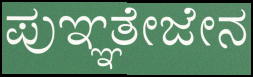
ಪುಞ್ಞತೇಜೇನ